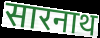
सारनाथ